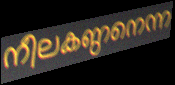
നീലകണ്ഠനെന്ന